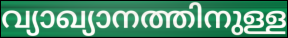
വ്യാഖ്യാനത്തിനുള്ള